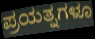
ಪ್ರಯತ್ನಗಳೂ